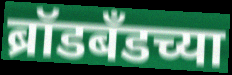
ब्रॉडबँडच्या